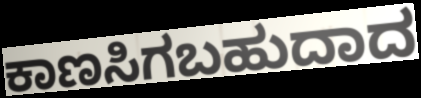
ಕಾಣಸಿಗಬಹುದಾದ